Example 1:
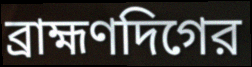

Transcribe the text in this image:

ব্রাহ্মণদিগের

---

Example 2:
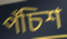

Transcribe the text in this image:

পঁচিশ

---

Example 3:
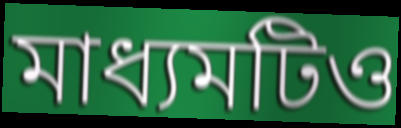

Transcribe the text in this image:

মাধ্যমটিও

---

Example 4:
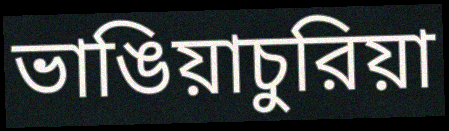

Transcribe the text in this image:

ভাঙিয়াচুরিয়া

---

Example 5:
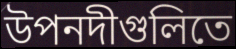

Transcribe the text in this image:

উপনদীগুলিতে